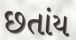
છતાંય